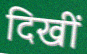
दिखीं